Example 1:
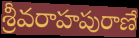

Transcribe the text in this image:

శ్రీవరాహపురాణే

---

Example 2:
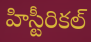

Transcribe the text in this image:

హిస్టీరికల్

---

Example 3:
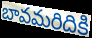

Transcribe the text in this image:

బావమరిదికి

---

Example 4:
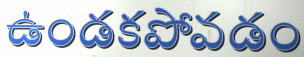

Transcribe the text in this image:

ఉండకపోవడం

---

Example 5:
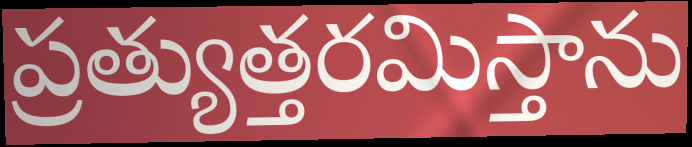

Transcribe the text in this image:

ప్రత్యుత్తరమిస్తాను